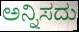
ಅನ್ನಿಸದು